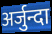
अर्जुन्दा